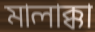
মালাক্কা